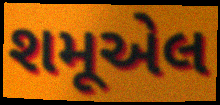
શમૂએલ